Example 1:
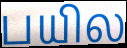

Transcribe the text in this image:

பயில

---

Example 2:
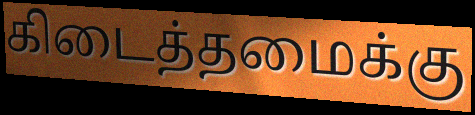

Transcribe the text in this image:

கிடைத்தமைக்கு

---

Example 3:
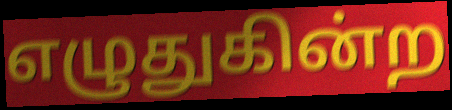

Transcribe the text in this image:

எழுதுகின்ற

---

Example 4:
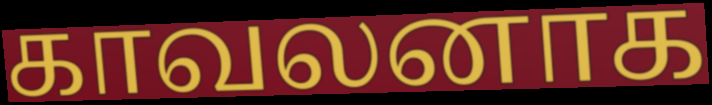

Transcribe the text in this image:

காவலனாக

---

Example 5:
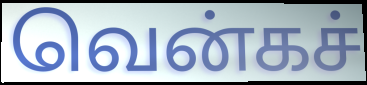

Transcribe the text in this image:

வென்கச்